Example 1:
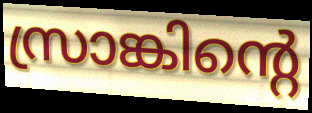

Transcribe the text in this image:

സ്രാങ്കിന്റെ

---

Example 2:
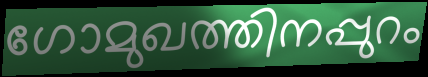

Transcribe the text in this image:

ഗോമുഖത്തിനപ്പുറം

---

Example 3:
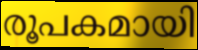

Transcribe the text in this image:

രൂപകമായി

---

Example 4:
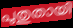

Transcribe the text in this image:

പുതുതായി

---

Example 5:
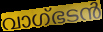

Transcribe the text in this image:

വാഗ്ഭടൻ